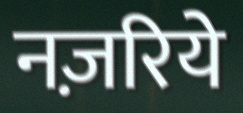
नज़रिये